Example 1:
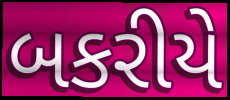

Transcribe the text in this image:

બકરીયે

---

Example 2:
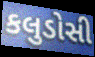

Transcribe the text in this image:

કલુડોસી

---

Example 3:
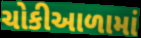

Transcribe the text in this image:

ચોકીઆળામાં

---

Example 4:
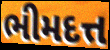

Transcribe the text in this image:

ભીમદત્ત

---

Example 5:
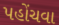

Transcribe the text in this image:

પહોંચવા